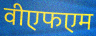
वीएफएम